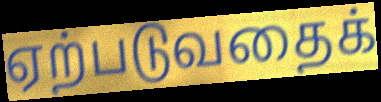
ஏற்படுவதைக்